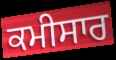
ਕਮੀਸਾਰ